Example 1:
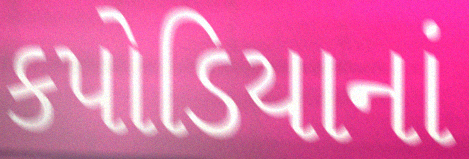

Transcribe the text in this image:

કપોડિયાનાં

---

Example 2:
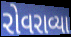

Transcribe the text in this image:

રોવરાવ્યા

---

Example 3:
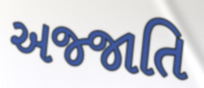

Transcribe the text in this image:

અજ્જાતિ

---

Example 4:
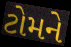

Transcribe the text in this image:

ટોમને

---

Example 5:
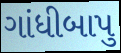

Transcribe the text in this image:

ગાંધીબાપુ